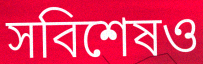
সবিশেষও